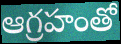
ఆగ్రహంతో